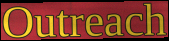
Outreach